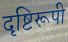
दृष्टिरूपी